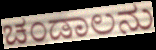
ಚಂಡಾಲನು